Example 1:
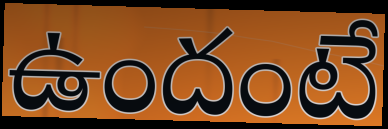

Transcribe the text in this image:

ఉందంటే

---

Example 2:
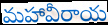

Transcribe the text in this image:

మహావీరాయ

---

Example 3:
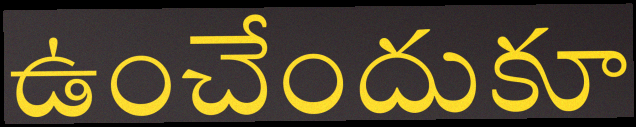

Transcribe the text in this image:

ఉంచేందుకూ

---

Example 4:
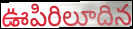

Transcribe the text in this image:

ఊపిరిలూదిన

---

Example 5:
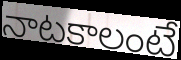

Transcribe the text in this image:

నాటకాలంటే